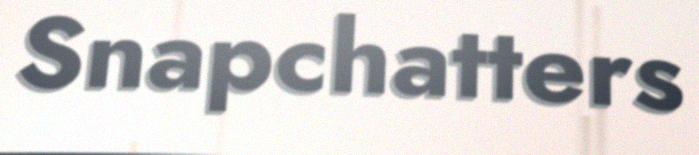
Snapchatters